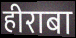
हीराबा